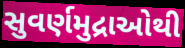
સુવર્ણમુદ્રાઓથી